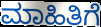
ಮಾಹಿತಿಗೆ